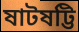
ষাটষট্টি